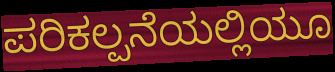
ಪರಿಕಲ್ಪನೆಯಲ್ಲಿಯೂ